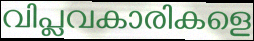
വിപ്ലവകാരികളെ